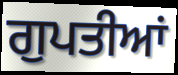
ਗੁਪਤੀਆਂ